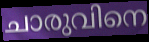
ചാരുവിനെ